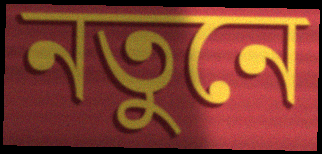
নতুনে